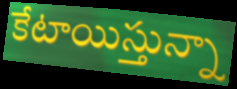
కేటాయిస్తున్నా